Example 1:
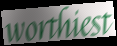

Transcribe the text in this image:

worthiest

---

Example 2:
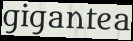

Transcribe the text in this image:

gigantea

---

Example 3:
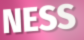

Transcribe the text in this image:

NESS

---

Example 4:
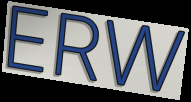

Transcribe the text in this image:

ERW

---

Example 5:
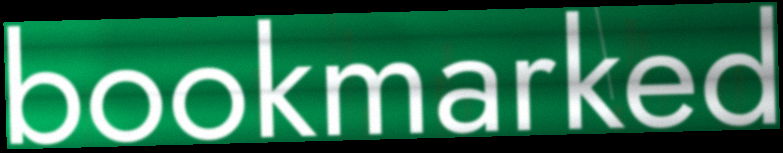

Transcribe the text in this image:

bookmarked